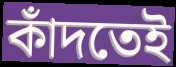
কাঁদতেই